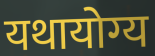
यथायोग्य